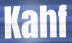
Kahf